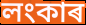
লংকাৰ